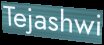
Tejashwi